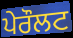
ਪੇਰੌਲਟ